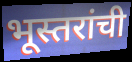
भूस्तरांची